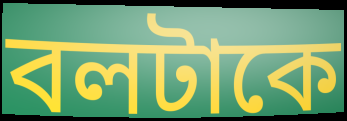
বলটাকে